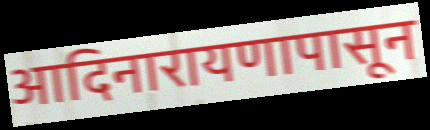
आदिनारायणापासून